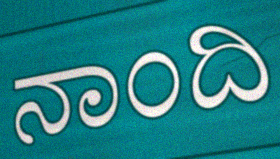
ನಾಂದಿ